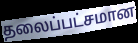
தலைப்பட்சமான